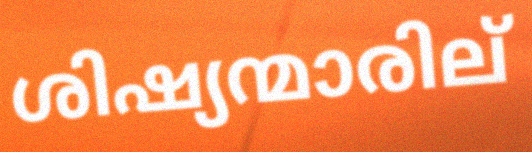
ശിഷ്യന്മാരില്